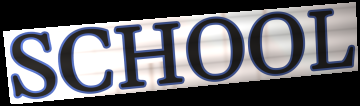
SCHOOL